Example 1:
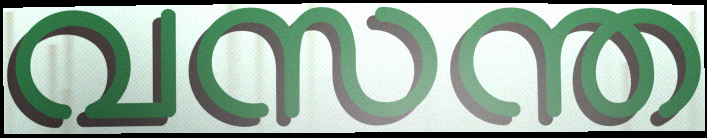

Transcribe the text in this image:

വസന്ത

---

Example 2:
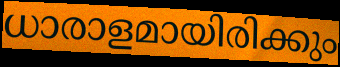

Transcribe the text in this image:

ധാരാളമായിരിക്കും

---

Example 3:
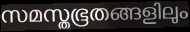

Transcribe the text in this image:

സമസ്തഭൂതങ്ങളിലും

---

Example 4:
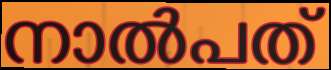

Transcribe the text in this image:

നാൽപത്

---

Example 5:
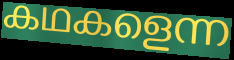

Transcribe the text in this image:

കഥകളെന്ന